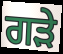
ਗੜੇ